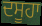
ਦਸੂਹਾ